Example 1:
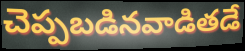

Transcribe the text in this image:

చెప్పబడినవాడితడే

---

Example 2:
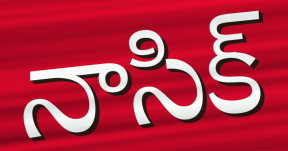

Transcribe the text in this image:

నాసిక్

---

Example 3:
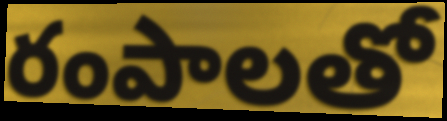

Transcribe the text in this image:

రంపాలతో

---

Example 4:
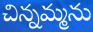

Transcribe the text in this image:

చిన్నమ్మను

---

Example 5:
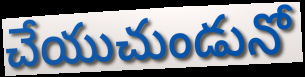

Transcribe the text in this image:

చేయుచుండునో